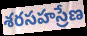
శరసహస్రేణ